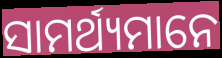
ସାମର୍ଥ୍ୟମାନେ